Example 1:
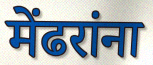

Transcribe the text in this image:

मेंढरांना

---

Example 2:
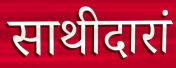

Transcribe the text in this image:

साथीदारां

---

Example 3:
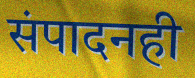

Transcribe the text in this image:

संपादनही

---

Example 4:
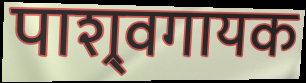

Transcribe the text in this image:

पाश्र्वगायक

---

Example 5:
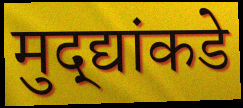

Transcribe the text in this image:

मुद्द्यांकडे